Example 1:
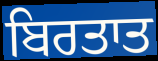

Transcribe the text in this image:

ਬਿਰਤਾਤ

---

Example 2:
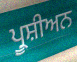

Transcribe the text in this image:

ਪ੍ਰੂਸ਼ੀਅਨ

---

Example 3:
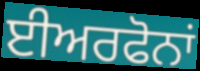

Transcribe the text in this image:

ਈਅਰਫੋਨਾਂ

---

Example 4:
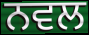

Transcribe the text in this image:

ਨਵਲ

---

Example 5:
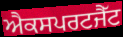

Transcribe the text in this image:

ਐਕਸਪਰਟਜੈੱਟ